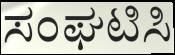
ಸಂಘಟಿಸಿ